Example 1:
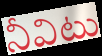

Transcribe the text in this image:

నీవిటు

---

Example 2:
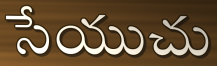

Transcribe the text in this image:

సేయుచు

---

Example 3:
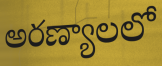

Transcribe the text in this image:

అరణ్యాలలో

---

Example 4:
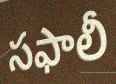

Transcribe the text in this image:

సఫాలీ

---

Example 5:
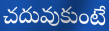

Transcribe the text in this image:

చదువుకుంటే